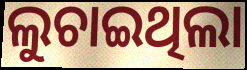
ଲୁଚାଇଥିଲା